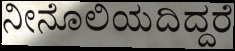
ನೀನೊಲಿಯದಿದ್ದರೆ